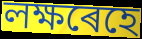
লক্ষৰেহে